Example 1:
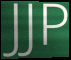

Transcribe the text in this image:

JJP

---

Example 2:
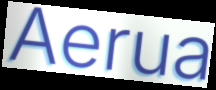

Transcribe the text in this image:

Aerua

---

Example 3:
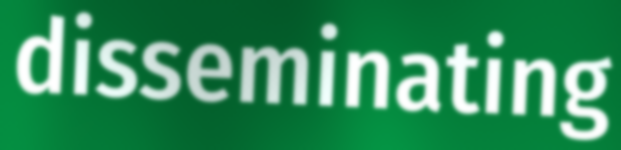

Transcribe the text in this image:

disseminating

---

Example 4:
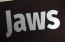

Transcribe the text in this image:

Jaws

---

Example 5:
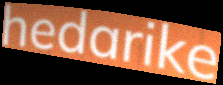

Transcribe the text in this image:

hedarike